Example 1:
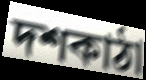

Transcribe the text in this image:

দশকাঠা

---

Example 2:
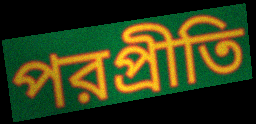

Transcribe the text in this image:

পরপ্রীতি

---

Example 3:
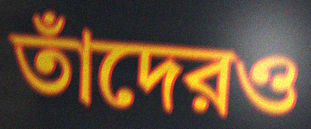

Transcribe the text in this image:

তাঁদেরও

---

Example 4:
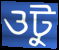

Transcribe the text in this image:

ওটু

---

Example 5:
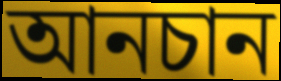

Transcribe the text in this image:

আনচান